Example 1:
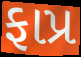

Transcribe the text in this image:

ફાપ્ર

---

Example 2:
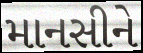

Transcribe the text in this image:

માનસીને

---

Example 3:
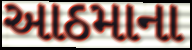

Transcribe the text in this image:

આઠમાના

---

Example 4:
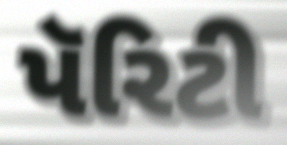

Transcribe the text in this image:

પૅરિટી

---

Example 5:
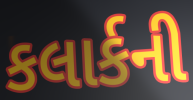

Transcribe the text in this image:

કલાર્કની